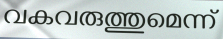
വകവരുത്തുമെന്ന്